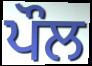
ਪੌਲ